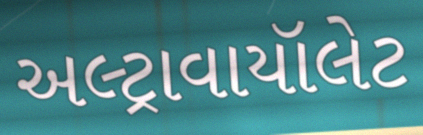
અલ્ટ્રાવાયૉલેટ